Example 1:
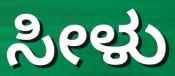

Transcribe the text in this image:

ಸೀಳು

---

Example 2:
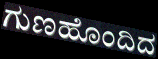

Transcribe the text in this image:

ಗುಣಹೊಂದಿದ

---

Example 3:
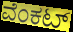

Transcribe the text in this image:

ವೆಂಕಟ್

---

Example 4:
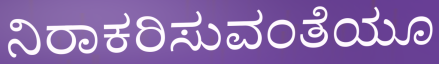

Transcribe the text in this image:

ನಿರಾಕರಿಸುವಂತೆಯೂ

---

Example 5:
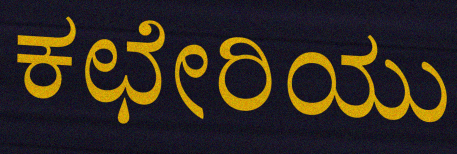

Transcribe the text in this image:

ಕಛೇರಿಯು